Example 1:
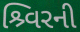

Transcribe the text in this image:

શ્ર્વિરની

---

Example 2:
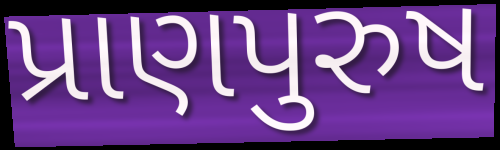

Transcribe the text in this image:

પ્રાણપુરુષ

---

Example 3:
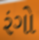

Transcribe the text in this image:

રંગો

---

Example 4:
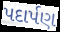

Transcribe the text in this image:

પદાર્પણ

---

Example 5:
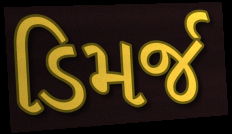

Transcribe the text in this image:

ડિમર્જ